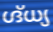
ഗ്ദ്ധ്യ